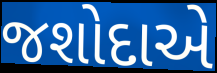
જશોદાએ